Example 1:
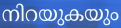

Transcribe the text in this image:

നിറയുകയും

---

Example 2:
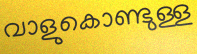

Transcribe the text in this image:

വാളുകൊണ്ടുള്ള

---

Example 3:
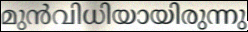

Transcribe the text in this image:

മുൻവിധിയായിരുന്നു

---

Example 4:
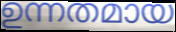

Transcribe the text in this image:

ഉന്നതമായ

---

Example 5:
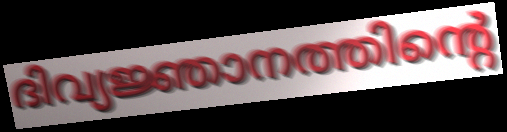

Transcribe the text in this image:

ദിവ്യജ്ഞാനത്തിന്റെ